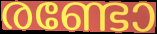
രണ്ടോ